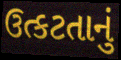
ઉત્કટતાનું